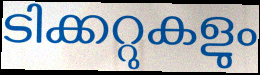
ടിക്കറ്റുകളും